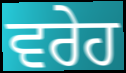
ਵਰੇਹ